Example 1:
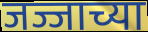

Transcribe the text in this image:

जज्जाच्या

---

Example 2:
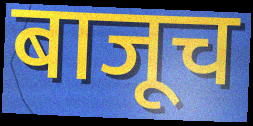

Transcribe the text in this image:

बाजूच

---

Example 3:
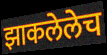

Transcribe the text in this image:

झाकलेलेच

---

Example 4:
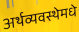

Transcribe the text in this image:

अर्थव्यवस्थेमधे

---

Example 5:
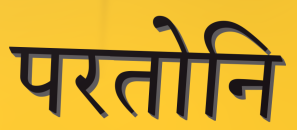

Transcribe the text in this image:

परतोनि